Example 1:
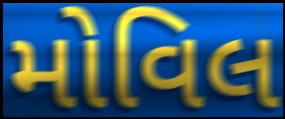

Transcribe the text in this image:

મોવિલ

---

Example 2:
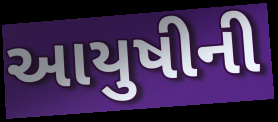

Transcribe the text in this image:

આયુષીની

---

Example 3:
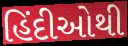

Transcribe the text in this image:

હિંદીઓથી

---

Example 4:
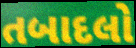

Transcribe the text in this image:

તબાદલો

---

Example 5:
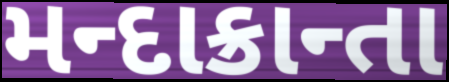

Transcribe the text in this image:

મન્દાક્રાન્તા